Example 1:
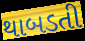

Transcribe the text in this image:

થાબડતી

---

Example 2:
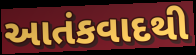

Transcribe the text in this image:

આતંકવાદથી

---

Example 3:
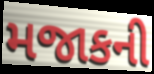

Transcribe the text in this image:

મજાકની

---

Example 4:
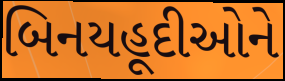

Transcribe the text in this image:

બિનયહૂદીઓને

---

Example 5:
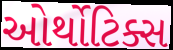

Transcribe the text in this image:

ઓર્થોટિક્સ